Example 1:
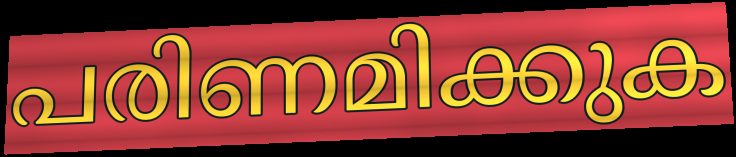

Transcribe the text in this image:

പരിണമിക്കുക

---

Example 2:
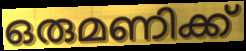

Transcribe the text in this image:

ഒരുമണിക്ക്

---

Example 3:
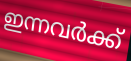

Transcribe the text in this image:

ഇന്നവർക്ക്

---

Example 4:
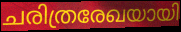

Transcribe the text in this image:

ചരിത്രരേഖയായി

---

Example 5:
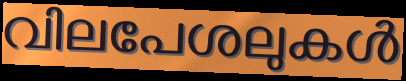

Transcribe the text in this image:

വിലപേശലുകൾ